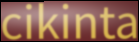
cikinta